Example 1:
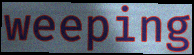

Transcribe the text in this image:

weeping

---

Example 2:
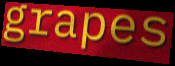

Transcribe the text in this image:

grapes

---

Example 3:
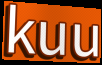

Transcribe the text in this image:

kuu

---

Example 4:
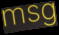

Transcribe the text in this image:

msg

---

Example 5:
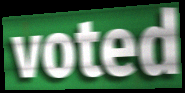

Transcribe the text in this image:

voted